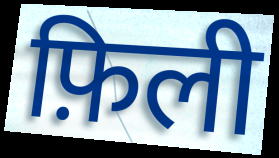
फ़िली